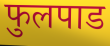
फुलपाड